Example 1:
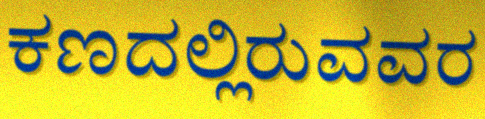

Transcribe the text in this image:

ಕಣದಲ್ಲಿರುವವರ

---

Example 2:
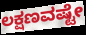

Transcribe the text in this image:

ಲಕ್ಷಣವಷ್ಟೇ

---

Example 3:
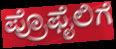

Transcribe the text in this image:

ಪ್ರೊಫೈಲಿಗೆ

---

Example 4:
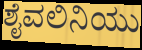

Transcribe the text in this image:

ಶೈವಲಿನಿಯು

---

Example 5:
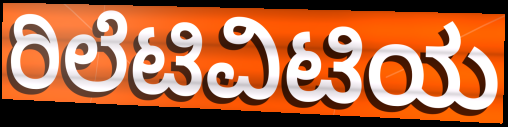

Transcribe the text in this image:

ರಿಲೆಟಿವಿಟಿಯ